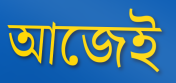
আজেই